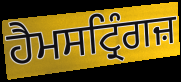
ਹੈਮਸਟ੍ਰਿੰਗਜ਼